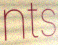
nts